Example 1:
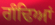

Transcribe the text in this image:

ਗੰਢਿਆਂ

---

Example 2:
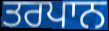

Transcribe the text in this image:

ਤਰਪਾਨ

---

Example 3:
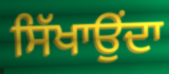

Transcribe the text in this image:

ਸਿੱਖਾਉਂਦਾ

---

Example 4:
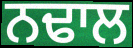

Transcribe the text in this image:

ਨਢਾਲ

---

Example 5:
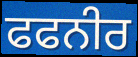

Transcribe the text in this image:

ਫਫਨੀਰ